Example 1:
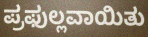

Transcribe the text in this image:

ಪ್ರಫುಲ್ಲವಾಯಿತು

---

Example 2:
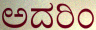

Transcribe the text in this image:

ಅದರಿಂ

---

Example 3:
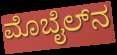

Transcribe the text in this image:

ಮೊಬೈಲ್‌ನ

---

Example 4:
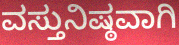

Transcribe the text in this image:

ವಸ್ತುನಿಷ್ಠವಾಗಿ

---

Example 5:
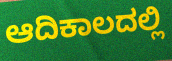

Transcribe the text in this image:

ಆದಿಕಾಲದಲ್ಲಿ